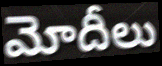
మోదీలు